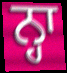
ਨ੍ਹਾ